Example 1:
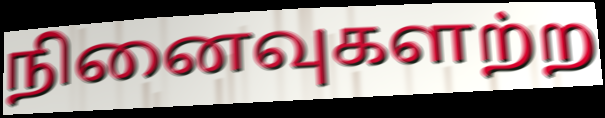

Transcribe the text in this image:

நினைவுகளற்ற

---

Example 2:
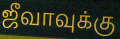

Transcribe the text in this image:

ஜீவாவுக்கு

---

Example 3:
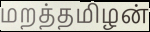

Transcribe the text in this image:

மறத்தமிழன்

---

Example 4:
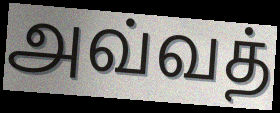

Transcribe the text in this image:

அவ்வத்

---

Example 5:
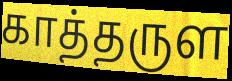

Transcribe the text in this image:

காத்தருள